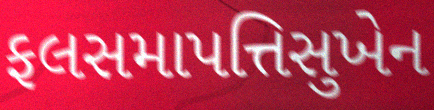
ફલસમાપત્તિસુખેન